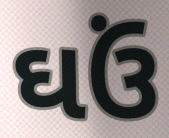
ઘઉં